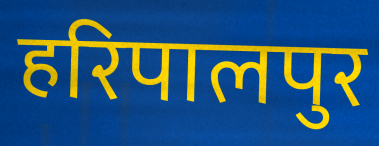
हरिपालपुर